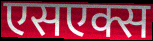
एसएक्स